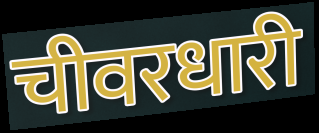
चीवरधारी